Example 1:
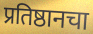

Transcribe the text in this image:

प्रतिष्ठानचा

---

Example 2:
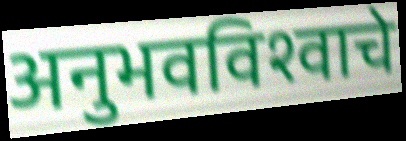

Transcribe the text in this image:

अनुभवविश्वाचे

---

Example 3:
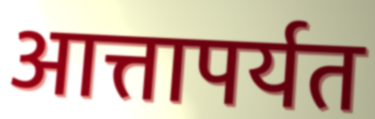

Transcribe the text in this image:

आत्तापर्यत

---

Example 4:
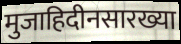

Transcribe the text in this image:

मुजाहिदीनसारख्या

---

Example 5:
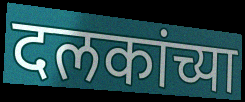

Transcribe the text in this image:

दलकांच्या